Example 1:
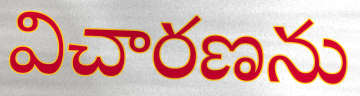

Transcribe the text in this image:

విచారణను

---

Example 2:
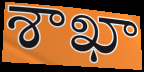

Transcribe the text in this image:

శాఖా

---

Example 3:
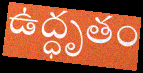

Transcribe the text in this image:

ఉద్ధృతం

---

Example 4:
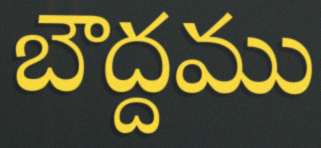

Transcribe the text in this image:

బౌద్దము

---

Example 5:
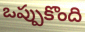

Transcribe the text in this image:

ఒప్పుకొంది